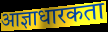
आज्ञाधारकता